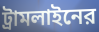
ট্রামলাইনের